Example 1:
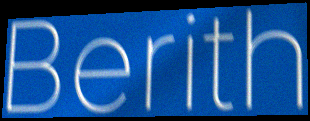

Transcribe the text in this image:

Berith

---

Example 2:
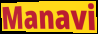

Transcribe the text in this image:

Manavi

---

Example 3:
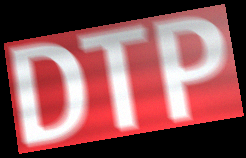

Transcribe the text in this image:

DTP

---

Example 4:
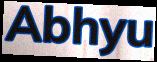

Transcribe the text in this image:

Abhyu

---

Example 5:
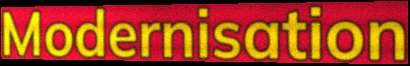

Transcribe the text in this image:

Modernisation